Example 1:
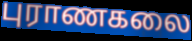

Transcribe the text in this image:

புராணகலை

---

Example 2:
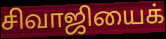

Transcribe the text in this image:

சிவாஜியைக்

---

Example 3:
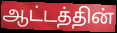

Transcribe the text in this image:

ஆட்டத்தின்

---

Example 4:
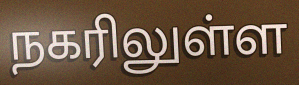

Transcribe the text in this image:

நகரிலுள்ள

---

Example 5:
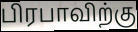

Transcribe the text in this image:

பிரபாவிற்கு